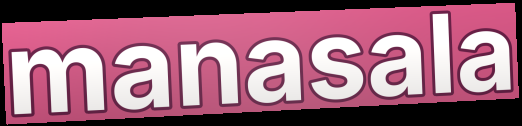
manasala